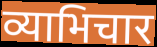
व्याभिचार